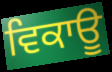
ਵਿਕਾਊ